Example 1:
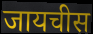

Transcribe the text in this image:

जायचीस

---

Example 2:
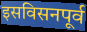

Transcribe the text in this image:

इसविसनपूर्व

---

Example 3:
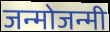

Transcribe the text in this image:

जन्मोजन्मी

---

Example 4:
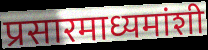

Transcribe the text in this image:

प्रसारमाध्यमांशी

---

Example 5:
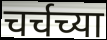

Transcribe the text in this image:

चर्चच्या